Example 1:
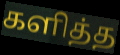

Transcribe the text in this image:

களித்த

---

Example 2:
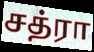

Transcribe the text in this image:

சத்ரா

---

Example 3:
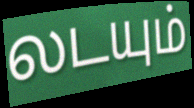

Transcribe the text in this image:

லடயும்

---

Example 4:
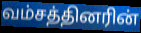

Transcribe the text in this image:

வம்சத்தினரின்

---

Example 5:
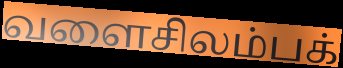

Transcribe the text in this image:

வளைசிலம்பக்